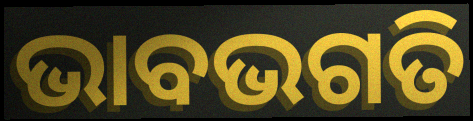
ଭାବଭଗତି